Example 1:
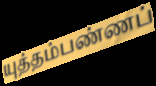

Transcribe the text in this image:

யுத்தம்பண்ணப்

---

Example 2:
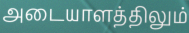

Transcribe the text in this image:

அடையாளத்திலும்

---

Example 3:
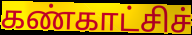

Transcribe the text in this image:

கண்காட்சிச்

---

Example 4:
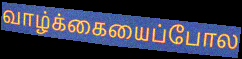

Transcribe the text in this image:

வாழ்க்கையைப்போல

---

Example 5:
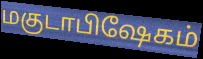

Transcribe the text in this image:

மகுடாபிஷேகம்